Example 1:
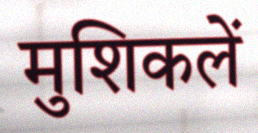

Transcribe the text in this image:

मुशिकलें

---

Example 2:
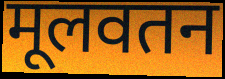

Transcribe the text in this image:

मूलवतन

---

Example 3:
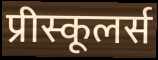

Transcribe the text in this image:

प्रीस्कूलर्स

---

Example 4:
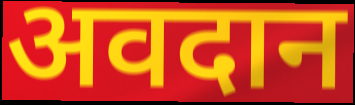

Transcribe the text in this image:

अवदान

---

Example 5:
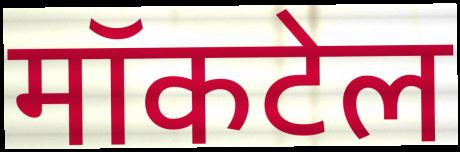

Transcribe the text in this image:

मॉकटेल